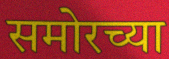
समोरच्या